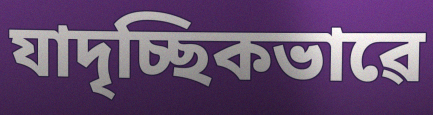
যাদৃচ্ছিকভাৱে